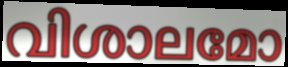
വിശാലമോ